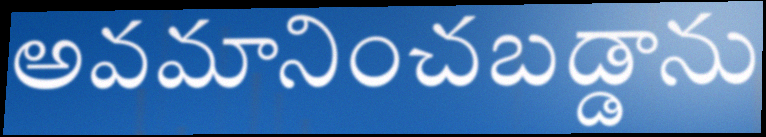
అవమానించబడ్డాను